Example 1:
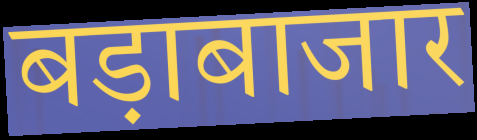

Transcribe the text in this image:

बड़ाबाजार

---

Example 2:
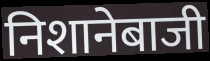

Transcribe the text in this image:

निशानेबाजी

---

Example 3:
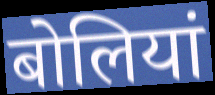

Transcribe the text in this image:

बोलियां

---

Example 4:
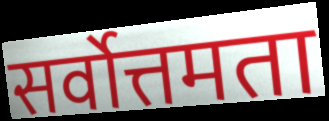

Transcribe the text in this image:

सर्वोत्तमता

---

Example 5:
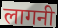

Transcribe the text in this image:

लागनी